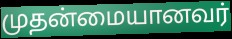
முதன்மையானவர்